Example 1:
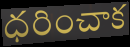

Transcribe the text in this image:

ధరించాక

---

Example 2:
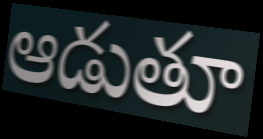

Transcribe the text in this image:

ఆడుతూ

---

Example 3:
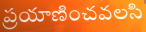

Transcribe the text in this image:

ప్రయాణించవలసి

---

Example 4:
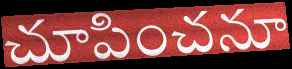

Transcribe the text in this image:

చూపించనూ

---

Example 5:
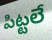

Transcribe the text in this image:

పిట్టలే